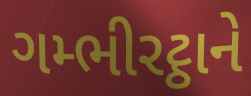
ગમ્ભીરટ્ઠાને